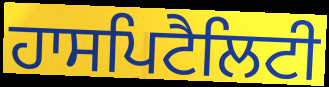
ਹਾਸਪਿਟੈਲਿਟੀ